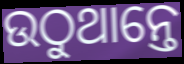
ଉଠୁଥାନ୍ତେ